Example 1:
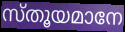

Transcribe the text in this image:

സ്തൂയമാനേ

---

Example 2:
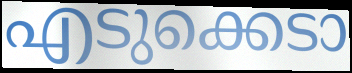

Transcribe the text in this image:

എടുക്കെടാ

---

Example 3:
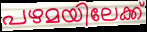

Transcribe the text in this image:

പഴമയിലേക്ക്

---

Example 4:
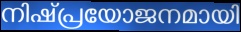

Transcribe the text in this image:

നിഷ്പ്രയോജനമായി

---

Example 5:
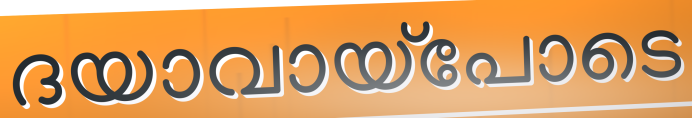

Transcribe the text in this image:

ദയാവായ്പോടെ